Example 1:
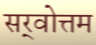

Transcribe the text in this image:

सर्वोत्तम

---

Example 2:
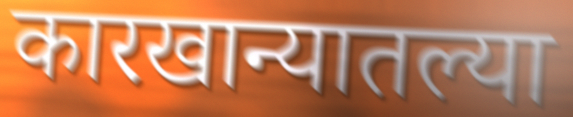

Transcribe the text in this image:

कारखान्यातल्या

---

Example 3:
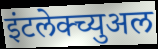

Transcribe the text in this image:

इंटलेक्च्युअल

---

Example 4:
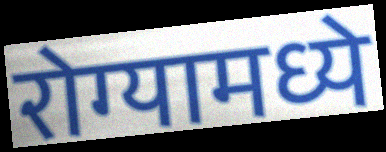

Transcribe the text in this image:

रोग्यामध्ये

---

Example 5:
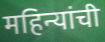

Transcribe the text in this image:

महिन्यांची